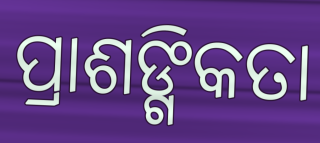
ପ୍ରାଶଙ୍ଗିକତା